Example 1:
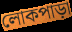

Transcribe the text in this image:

লোকপাড়া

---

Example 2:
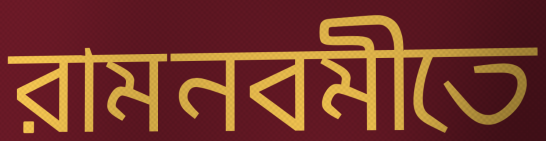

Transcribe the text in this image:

রামনবমীতে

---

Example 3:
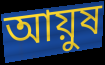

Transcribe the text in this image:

আয়ুষ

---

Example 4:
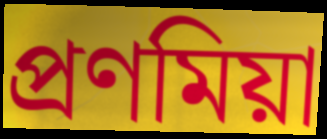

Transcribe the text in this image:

প্রণমিয়া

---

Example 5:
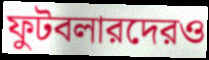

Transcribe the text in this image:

ফুটবলারদেরও